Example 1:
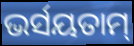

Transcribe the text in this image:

ଭର୍ସୟତାମ୍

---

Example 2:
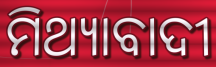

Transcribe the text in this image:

ମିଥ୍ୟାବାଦୀ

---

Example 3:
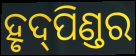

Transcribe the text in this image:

ହୃଦ୍‌ପିଣ୍ଡର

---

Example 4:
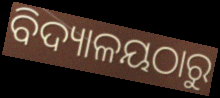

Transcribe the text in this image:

ବିଦ୍ୟାଳୟଠାରୁ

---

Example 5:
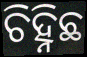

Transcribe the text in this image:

ଚିହ୍ନିଛ